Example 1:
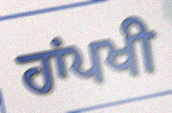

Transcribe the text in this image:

ਹਾਂਪਖੀ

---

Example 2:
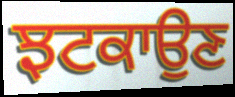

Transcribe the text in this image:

ਝਟਕਾਉਣ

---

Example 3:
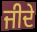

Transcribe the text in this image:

ਜੀਦੇ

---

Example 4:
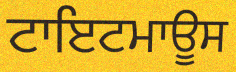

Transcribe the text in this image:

ਟਾਇਟਮਾਊਸ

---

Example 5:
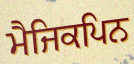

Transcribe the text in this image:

ਮੈਜਿਕਪਿਨ